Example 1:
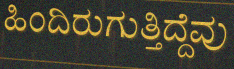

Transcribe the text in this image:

ಹಿಂದಿರುಗುತ್ತಿದ್ದೆವು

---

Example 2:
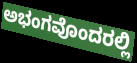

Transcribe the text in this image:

ಅಭಂಗವೊಂದರಲ್ಲಿ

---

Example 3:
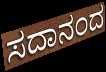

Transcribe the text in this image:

ಸದಾನಂದ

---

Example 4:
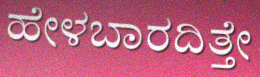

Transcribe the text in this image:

ಹೇಳಬಾರದಿತ್ತೇ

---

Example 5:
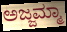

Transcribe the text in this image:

ಅಜ್ಜಮ್ಮಾ